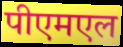
पीएमएल